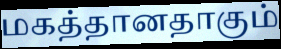
மகத்தானதாகும்